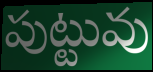
పుట్టువు